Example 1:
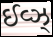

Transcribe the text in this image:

ઈવ્ઝ્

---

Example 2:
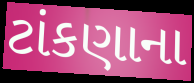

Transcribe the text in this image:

ટાંકણાના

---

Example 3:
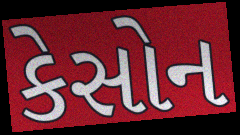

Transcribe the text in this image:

કેસોન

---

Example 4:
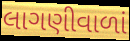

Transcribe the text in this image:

લાગણીવાળાં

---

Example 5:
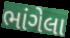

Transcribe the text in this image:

ભાંગેલા